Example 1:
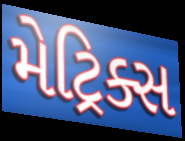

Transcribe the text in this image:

મેટ્રિક્સ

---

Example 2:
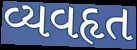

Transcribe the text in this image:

વ્યવહૃત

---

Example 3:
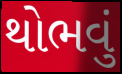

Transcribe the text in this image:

થોભવું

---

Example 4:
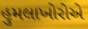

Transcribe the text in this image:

હુમલાખોરોએ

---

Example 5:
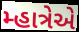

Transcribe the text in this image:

મ્હાત્રેએ